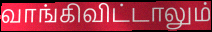
வாங்கிவிட்டாலும்